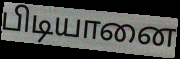
பிடியானை